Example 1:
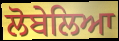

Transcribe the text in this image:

ਲੋਬੇਲਿਆ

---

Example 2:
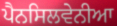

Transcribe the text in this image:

ਪੈਨਸਿਲਵੇਨੀਆ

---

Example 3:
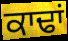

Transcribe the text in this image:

ਕਾਢਾਂ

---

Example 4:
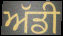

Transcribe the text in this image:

ਅੱਡੀ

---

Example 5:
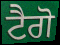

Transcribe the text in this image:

ਟੈਗੋ